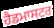
ਹੈਡਮਾਸਟਰ